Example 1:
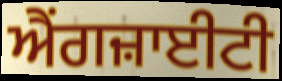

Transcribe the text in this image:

ਐਂਗਜ਼ਾਈਟੀ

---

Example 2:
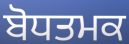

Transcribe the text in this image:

ਬੋਧਤਮਕ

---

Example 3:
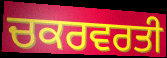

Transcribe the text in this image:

ਚਕਰਵਰਤੀ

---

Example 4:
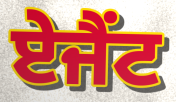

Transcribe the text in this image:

ਏਜੈਂਟ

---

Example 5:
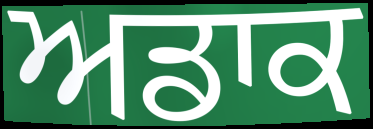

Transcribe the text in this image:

ਅਡਾਕ